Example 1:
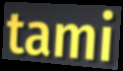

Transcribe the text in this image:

tami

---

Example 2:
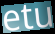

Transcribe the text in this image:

etu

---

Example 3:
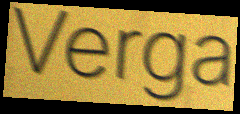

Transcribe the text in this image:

Verga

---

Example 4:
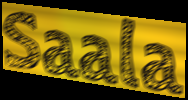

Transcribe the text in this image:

Saala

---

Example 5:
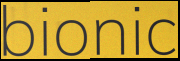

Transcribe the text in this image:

bionic